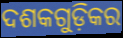
ଦଶକଗୁଡ଼ିକର